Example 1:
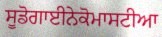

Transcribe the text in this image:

ਸੂਡੋਗਾਈਨੇਕੋਮਾਸਟੀਆ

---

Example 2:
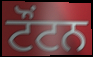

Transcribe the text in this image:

ਟੌਂਟਨ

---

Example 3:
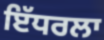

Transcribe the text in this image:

ਇੱਧਰਲਾ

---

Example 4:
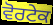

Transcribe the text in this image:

ਵੋਰਟੇਕ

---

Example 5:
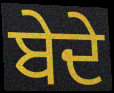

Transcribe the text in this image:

ਬੇਦੇ